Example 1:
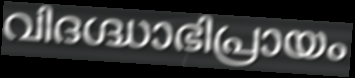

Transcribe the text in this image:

വിദഗ്ദ്ധാഭിപ്രായം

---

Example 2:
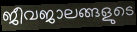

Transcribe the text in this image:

ജീവജാലങ്ങളുടെ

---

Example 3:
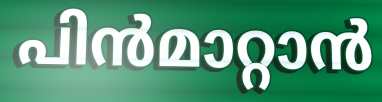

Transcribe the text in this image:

പിൻമാറ്റാൻ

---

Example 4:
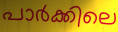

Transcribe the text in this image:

പാർക്കിലെ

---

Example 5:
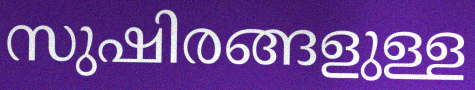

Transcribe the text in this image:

സുഷിരങ്ങളുള്ള